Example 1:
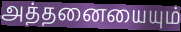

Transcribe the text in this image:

அத்தனையையும்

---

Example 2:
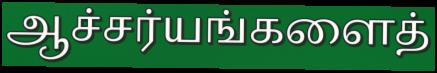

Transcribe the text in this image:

ஆச்சர்யங்களைத்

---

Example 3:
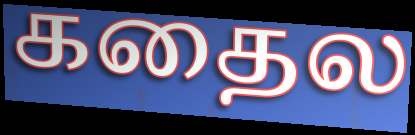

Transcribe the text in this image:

கதைல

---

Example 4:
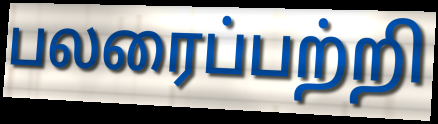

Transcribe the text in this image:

பலரைப்பற்றி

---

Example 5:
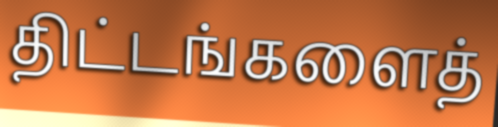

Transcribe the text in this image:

திட்டங்களைத்